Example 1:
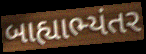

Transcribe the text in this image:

બાહ્યાભ્યંતર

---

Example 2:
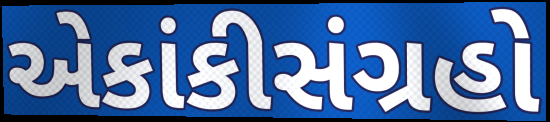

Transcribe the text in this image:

એકાંકીસંગ્રહો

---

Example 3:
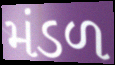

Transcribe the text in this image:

મંડળ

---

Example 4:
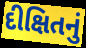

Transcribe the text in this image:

દીક્ષિતનું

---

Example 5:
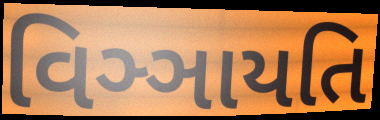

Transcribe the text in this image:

વિઞ્ઞાયતિ